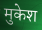
मुकेश